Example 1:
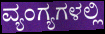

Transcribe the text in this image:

ವ್ಯಂಗ್ಯಗಳಲ್ಲಿ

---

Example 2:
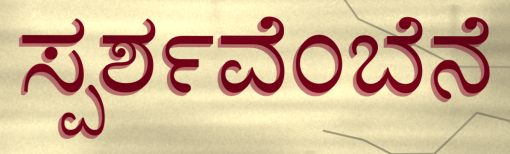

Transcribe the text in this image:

ಸ್ಪರ್ಶವೆಂಬೆನೆ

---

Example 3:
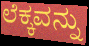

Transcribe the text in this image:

ಲೆಕ್ಕವನ್ನು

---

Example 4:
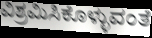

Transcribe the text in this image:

ವಿಶ್ರಮಿಸಿಕೊಳ್ಳುವಂತೆ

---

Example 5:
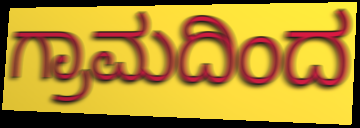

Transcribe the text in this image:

ಗ್ರಾಮದಿಂದ